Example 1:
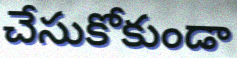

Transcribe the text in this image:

చేసుకోకుండా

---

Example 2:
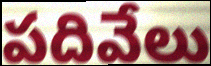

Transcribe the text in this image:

పదివేలు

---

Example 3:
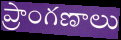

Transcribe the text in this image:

ప్రాంగణాలు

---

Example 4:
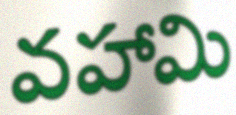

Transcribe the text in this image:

వహామి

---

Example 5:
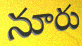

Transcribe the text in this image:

నూరు